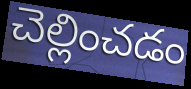
చెల్లించడం